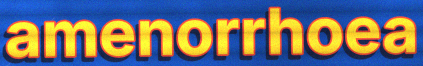
amenorrhoea